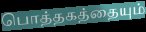
பொத்தகத்தையும்